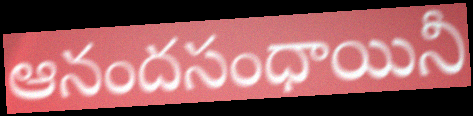
ఆనందసంధాయినీ